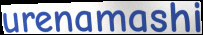
urenamashi